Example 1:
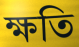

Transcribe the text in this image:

ক্ষতি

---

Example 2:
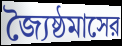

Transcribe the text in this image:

জ্যৈষ্ঠমাসের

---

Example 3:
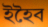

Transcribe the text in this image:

ইহৈব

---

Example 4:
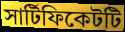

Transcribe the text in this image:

সার্টিফিকেটটি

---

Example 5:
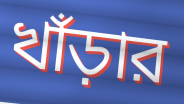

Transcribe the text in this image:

খাঁড়ার